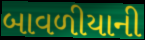
બાવળીયાની